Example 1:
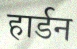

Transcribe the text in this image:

हार्डन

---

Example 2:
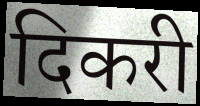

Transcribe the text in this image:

दिकरी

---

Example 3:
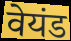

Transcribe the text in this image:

वेयंड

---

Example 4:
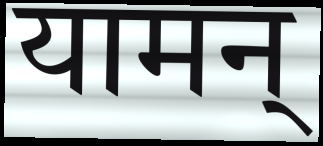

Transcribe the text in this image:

यामन्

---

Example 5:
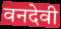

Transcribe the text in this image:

वनदेवी